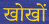
खोखों